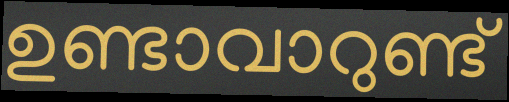
ഉണ്ടാവാറുണ്ട്